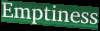
Emptiness